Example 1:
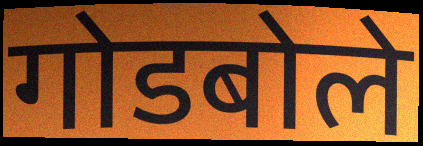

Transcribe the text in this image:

गोडबोले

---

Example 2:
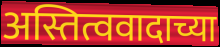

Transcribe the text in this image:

अस्तित्ववादाच्या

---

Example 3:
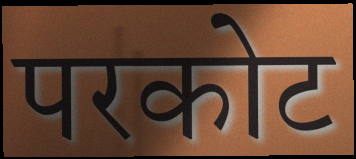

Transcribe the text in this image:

परकोट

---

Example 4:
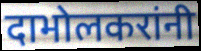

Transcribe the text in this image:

दाभोलकरांनी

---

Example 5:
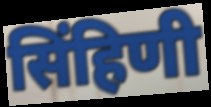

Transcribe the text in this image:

सिंहिणी